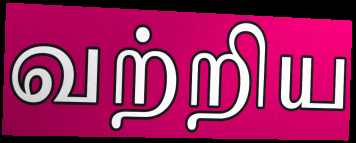
வற்றிய